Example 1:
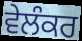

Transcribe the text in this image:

ਵੇਲੰਕਰ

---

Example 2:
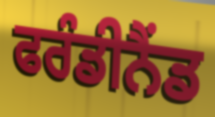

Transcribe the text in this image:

ਫਰੰਡੀਨੈਂਡ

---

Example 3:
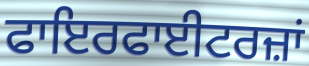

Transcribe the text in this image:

ਫਾਇਰਫਾਈਟਰਜ਼ਾਂ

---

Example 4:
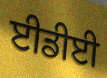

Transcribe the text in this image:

ਈਡੀਈ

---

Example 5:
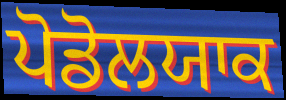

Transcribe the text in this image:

ਪੋਡੋਲਯਾਕ